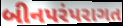
બીનપરંપરાગત